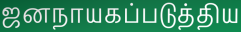
ஜனநாயகப்படுத்திய